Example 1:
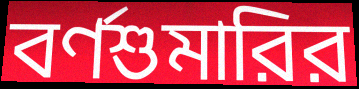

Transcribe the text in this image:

বর্ণশুমারির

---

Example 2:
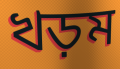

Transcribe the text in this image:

খড়ম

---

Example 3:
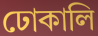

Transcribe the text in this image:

ঢোকালি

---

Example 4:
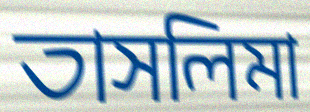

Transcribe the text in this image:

তাসলিমা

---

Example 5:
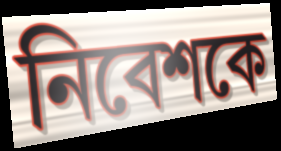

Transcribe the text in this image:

নিবেশকে